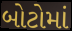
બોટોમાં